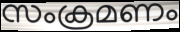
സംക്രമണം